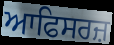
ਆਫਿਸਰਜ਼